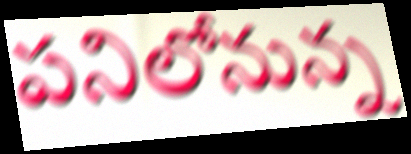
పనిలోనున్న